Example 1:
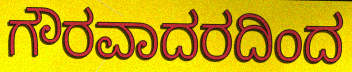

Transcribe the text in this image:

ಗೌರವಾದರದಿಂದ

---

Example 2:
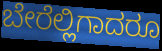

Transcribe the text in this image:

ಬೇರೆಲ್ಲಿಗಾದರೂ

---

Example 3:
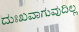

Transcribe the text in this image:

ದುಃಖವಾಗುವುದಿಲ್ಲ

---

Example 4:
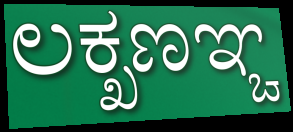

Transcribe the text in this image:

ಲಕ್ಖಣಞ್ಚ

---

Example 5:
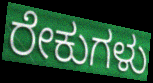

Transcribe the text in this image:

ರೇಕುಗಳು